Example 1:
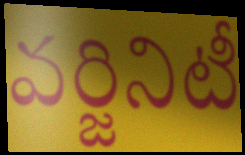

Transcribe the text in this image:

వర్జినిటీ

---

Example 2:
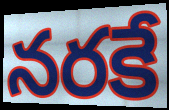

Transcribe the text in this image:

నరకే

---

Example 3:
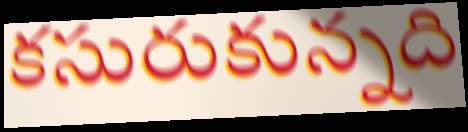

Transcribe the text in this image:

కసురుకున్నది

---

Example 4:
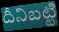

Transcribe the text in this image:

దీనిబట్టి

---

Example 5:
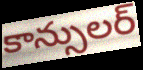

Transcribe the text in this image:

కాన్సులర్